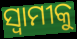
ସ୍ବାମୀକୁ